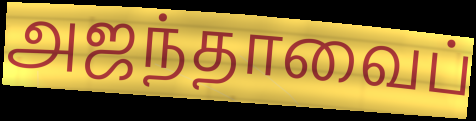
அஜந்தாவைப்